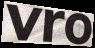
vro